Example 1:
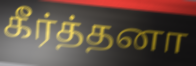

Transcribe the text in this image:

கீர்த்தனா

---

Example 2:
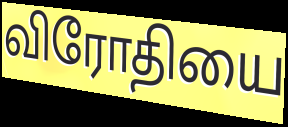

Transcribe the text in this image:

விரோதியை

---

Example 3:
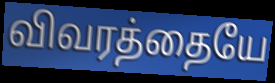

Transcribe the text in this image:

விவரத்தையே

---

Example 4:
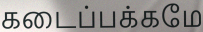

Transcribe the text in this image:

கடைப்பக்கமே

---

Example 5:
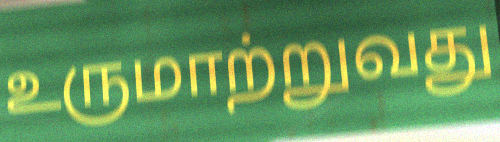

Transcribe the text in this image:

உருமாற்றுவது